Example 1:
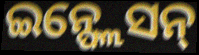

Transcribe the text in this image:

ଇନ୍ଫ୍ଲେସନ୍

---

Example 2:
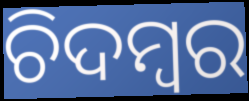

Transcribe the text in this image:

ଚିଦମ୍ବର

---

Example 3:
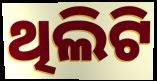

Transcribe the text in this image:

ଥିଲିଟି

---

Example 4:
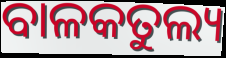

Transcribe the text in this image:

ବାଳକତୁଲ୍ୟ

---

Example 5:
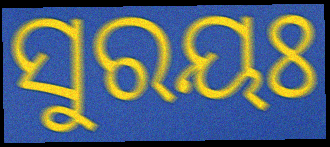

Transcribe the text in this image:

ସୁରୟଃ